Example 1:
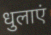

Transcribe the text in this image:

धुलाएं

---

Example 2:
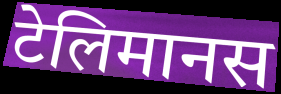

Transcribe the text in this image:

टेलिमानस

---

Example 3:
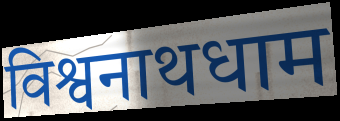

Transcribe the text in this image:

विश्वनाथधाम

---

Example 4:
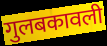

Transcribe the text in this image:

गुलबकावली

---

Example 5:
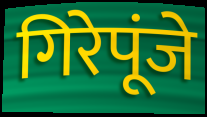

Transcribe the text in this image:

गिरेपूंजे